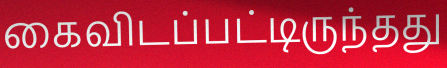
கைவிடப்பட்டிருந்தது